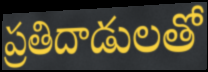
ప్రతిదాడులతో